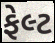
ફેલ્ટ